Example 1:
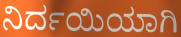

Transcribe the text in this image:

ನಿರ್ದಯಿಯಾಗಿ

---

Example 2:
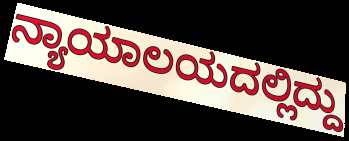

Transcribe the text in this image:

ನ್ಯಾಯಾಲಯದಲ್ಲಿದ್ದು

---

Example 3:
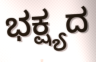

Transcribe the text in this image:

ಭಕ್ಷ್ಯದ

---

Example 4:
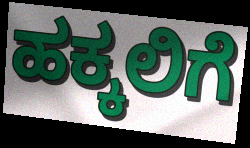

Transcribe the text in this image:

ಹಕ್ಕಲಿಗೆ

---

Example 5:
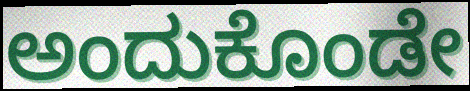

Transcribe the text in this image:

ಅಂದುಕೊಂಡೇ